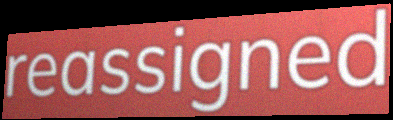
reassigned